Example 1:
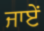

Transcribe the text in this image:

ਜਾਏਂ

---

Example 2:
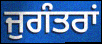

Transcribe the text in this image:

ਜੁਗੰਤਰਾਂ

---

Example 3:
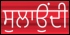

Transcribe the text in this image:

ਸੁਲਾਉਂਦੀ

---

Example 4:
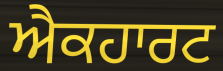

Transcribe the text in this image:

ਐਕਹਾਰਟ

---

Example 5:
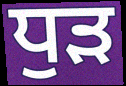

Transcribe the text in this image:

ਧੁੜ